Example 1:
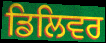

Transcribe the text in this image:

ਡਿਲਿਵਰ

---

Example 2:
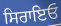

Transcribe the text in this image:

ਸਿਰਾਇਓ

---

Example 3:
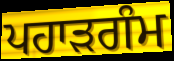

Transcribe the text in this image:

ਪਹਾੜਗੰਮ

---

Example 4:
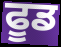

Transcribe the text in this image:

ਫੂਡ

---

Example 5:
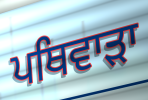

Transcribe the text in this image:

ਪਥਿਵਾੜਾ